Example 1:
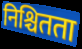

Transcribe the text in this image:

निश्चितता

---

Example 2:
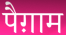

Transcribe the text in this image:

पैग़ाम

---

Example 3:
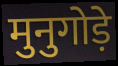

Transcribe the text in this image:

मुनुगोड़े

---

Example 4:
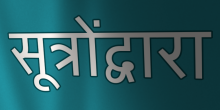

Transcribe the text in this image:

सूत्रोंद्वारा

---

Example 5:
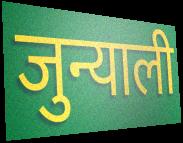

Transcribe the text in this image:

जुन्याली